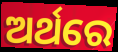
ଅର୍ଥରେ